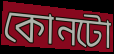
কোনটো